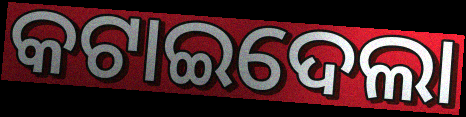
କଟାଇଦେଲା